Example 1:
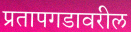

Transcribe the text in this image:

प्रतापगडावरील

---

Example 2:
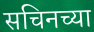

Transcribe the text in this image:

सचिनच्या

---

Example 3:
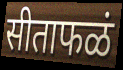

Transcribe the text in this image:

सीताफळं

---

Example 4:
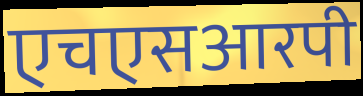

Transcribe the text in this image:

एचएसआरपी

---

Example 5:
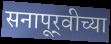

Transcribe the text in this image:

सनापूर्वीच्या